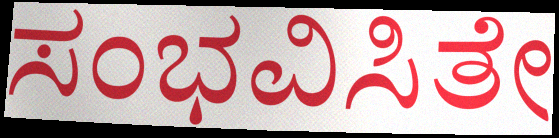
ಸಂಭವಿಸಿತೇ